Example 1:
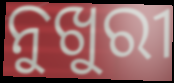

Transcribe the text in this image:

ନୁଖୁରୀ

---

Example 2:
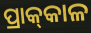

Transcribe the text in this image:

ପ୍ରାକ୍‌କାଳ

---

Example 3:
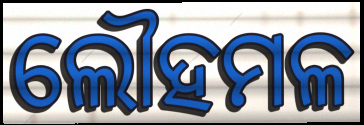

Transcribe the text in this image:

ଲୌହମଳ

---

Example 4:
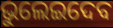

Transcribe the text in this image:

ଭୁଲେଇଦେବ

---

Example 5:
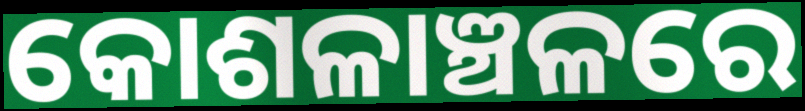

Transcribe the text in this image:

କୋଶଳାଞ୍ଚଳରେ